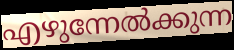
എഴുന്നേൽക്കുന്ന